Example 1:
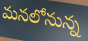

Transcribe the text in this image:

మనలోనున్న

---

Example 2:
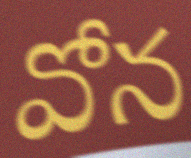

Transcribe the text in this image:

వోన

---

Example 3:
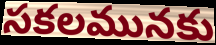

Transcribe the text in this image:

సకలమునకు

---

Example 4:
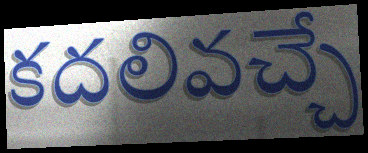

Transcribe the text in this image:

కదలివచ్చే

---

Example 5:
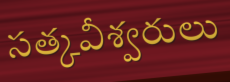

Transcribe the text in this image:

సత్కవీశ్వరులు